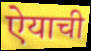
ऐयाची